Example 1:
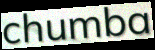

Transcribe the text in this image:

chumba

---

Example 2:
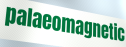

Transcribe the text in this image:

palaeomagnetic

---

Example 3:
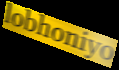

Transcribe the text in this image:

lobhoniyo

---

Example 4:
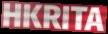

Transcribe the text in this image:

HKRITA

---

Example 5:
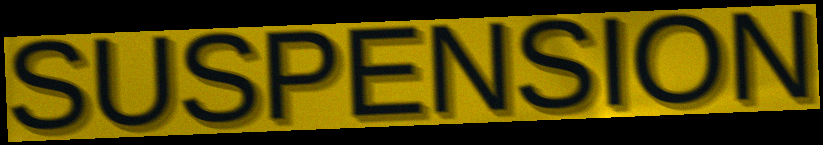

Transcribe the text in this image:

SUSPENSION